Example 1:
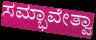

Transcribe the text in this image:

ಸಮ್ಭಾವೇತ್ವಾ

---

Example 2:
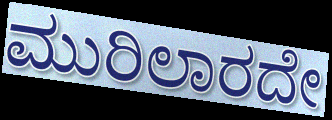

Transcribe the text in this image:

ಮುರಿಲಾರದೇ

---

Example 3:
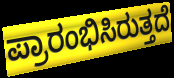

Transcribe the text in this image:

ಪ್ರಾರಂಭಿಸಿರುತ್ತದೆ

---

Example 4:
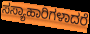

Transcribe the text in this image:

ಸಸ್ಯಾಹಾರಿಗಳಾದರೆ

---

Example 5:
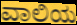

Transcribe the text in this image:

ವಾಲಿಯ